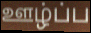
ஊழ்ப்ப